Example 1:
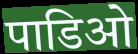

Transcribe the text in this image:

पाडिओ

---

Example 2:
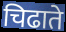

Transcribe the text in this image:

चिढाते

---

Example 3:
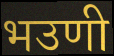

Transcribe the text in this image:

भउणी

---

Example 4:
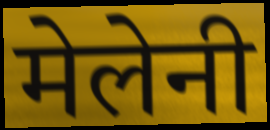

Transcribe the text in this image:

मेलेनी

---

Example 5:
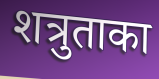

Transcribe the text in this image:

शत्रुताका